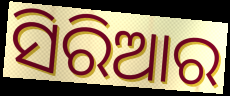
ସିରିଆର